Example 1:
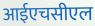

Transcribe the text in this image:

आईएचसीएल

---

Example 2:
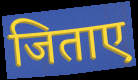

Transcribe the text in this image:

जिताए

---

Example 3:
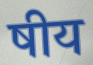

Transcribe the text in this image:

षीय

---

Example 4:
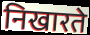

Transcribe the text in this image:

निखारते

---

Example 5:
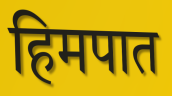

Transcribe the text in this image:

हिमपात